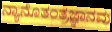
ನ್ಯಾನೊತಂತ್ರಜ್ಞಾನವು